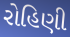
રોહિણી